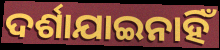
ଦର୍ଶାଯାଇନାହିଁ